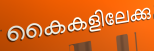
കൈകളിലേക്കു